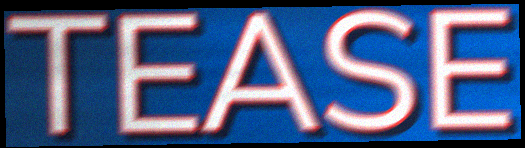
TEASE